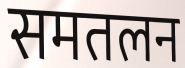
समतलन